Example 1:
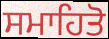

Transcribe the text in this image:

ਸਮਾਹਿਤੋ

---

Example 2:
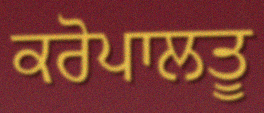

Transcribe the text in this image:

ਕਰੋਪਾਲਤੂ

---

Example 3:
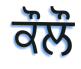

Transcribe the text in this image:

ਕੌਲੌ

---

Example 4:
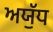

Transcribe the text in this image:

ਅਯੁੱਧ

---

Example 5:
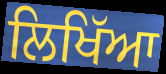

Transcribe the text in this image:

ਲਿਖਿੱਆ